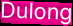
Dulong